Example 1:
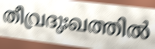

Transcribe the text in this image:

തീവ്രദുഃഖത്തിൽ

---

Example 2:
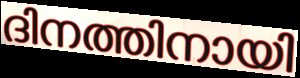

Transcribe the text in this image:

ദിനത്തിനായി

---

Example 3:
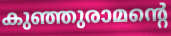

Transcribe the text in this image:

കുഞ്ഞുരാമന്റെ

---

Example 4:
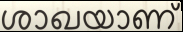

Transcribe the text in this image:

ശാഖയാണ്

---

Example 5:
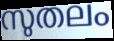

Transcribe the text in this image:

സുതലം